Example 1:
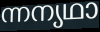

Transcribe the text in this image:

ന്നന്യഥാ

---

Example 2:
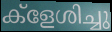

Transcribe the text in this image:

ക്ളേശിച്ചു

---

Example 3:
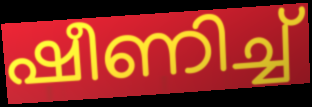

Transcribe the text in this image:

ഷീണിച്ച്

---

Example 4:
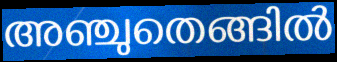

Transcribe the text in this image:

അഞ്ചുതെങ്ങിൽ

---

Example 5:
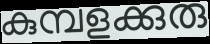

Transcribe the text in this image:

കുമ്പളക്കുരു